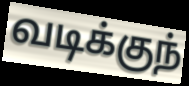
வடிக்குந்